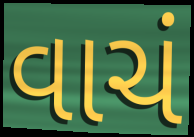
વાચં